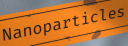
Nanoparticles